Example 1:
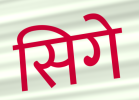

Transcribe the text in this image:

सिगे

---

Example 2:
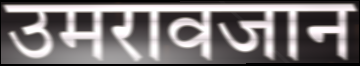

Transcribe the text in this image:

उमरावजान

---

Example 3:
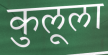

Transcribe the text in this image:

कुलूला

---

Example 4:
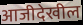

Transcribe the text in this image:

आजीदेखील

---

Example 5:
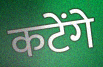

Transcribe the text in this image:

कटेंगे